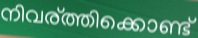
നിവര്ത്തിക്കൊണ്ട്